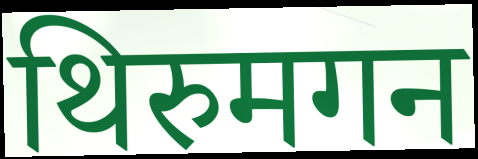
थिरुमगन